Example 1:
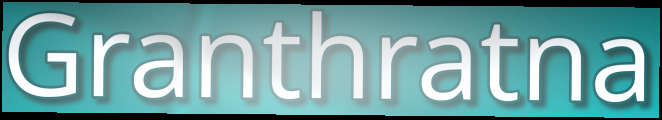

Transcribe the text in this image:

Granthratna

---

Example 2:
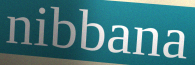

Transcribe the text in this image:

nibbana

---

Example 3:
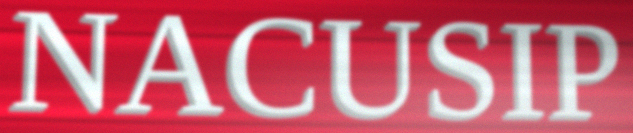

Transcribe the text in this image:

NACUSIP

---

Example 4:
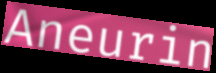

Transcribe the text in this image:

Aneurin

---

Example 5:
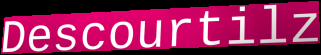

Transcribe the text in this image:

Descourtilz